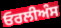
ਓਰਲੀਅੰਸ